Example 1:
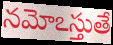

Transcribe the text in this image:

నమోఽస్తుతే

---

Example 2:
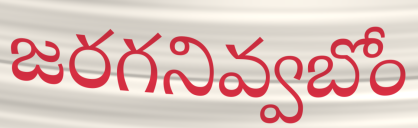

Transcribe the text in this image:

జరగనివ్వబోం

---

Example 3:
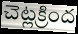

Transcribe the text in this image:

చెట్లక్రింద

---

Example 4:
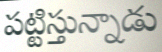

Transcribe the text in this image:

పట్టిస్తున్నాడు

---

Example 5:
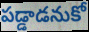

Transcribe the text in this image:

పడ్డాడనుకో